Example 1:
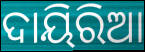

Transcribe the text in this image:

ଦାୟିରିଆ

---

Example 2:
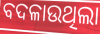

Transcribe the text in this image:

ବଦଳାଉଥିଲା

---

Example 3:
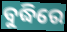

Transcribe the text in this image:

ବୁଦ୍ଧିରେ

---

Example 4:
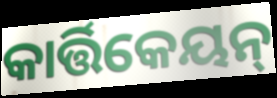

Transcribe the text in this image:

କାର୍ତ୍ତିକେୟନ୍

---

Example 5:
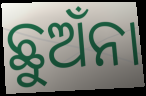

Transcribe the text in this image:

ଛୁଅଁନା